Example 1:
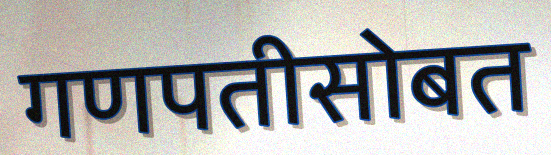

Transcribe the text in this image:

गणपतीसोबत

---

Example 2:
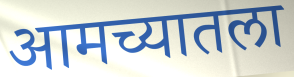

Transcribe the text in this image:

आमच्यातला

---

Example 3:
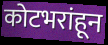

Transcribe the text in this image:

कोटभरांहून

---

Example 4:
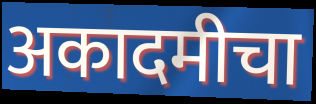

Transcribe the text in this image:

अकादमीचा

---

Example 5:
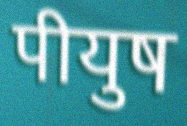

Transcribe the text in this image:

पीयुष